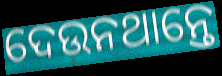
ଦେଉନଥାନ୍ତେ